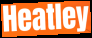
Heatley